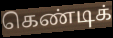
கெண்டிக்